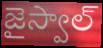
జైస్వాల్